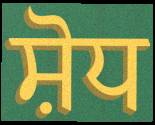
ਸ਼ੋਧ